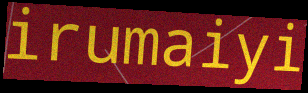
irumaiyi